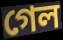
গেল